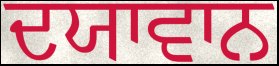
ਦਯਾਵਾਨ